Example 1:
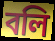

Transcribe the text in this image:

বলি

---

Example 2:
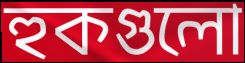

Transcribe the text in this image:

হুকগুলো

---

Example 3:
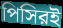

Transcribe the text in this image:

পিসিরই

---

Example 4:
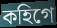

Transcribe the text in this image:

কহিগে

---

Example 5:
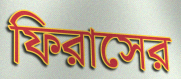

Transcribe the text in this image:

ফিরাসের